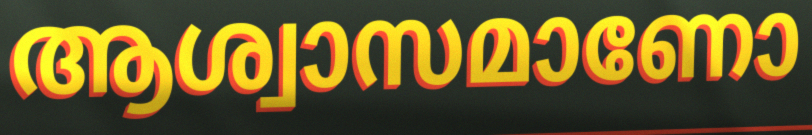
ആശ്വാസമാണോ